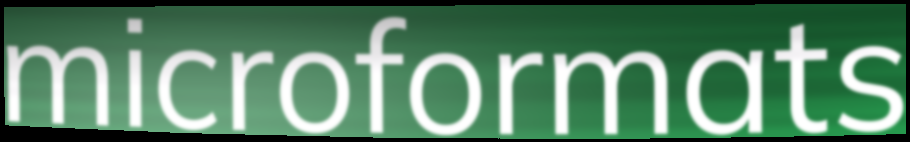
microformats